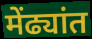
मेंढ्यांत